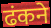
ढंकने